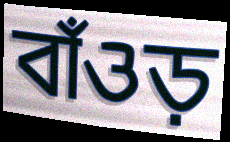
বাঁওড়